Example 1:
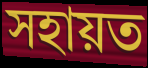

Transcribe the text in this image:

সহায়ত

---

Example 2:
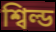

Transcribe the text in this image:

শ্বিল্ড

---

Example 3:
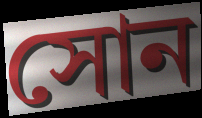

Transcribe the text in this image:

সোন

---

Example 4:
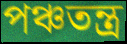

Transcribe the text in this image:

পঞ্চতন্ত্ৰ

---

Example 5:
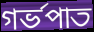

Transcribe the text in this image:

গৰ্ভপাত